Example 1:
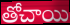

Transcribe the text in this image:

తోచాయి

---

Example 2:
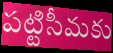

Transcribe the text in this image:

పట్టిసీమకు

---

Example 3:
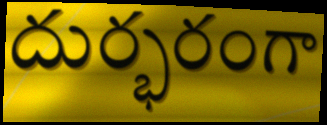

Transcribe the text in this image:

దుర్భరంగా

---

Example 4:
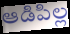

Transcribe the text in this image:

ఆడిపిల్ల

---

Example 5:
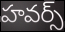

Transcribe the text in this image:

హవర్స్